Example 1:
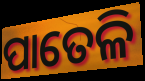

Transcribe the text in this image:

ପାତେଳି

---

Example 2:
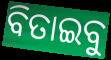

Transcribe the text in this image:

ବିତାଇବୁ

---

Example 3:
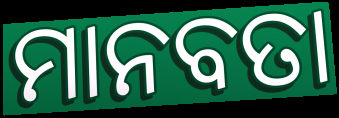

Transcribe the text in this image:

ମାନବତା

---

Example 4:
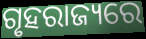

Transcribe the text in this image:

ଗୃହରାଜ୍ୟରେ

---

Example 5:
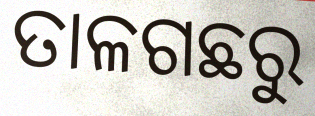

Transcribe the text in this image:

ତାଳଗଛରୁ